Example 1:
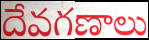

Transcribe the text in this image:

దేవగణాలు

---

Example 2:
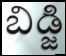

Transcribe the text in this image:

బిడ్జి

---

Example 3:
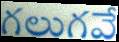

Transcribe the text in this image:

గలుగవే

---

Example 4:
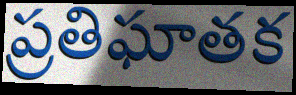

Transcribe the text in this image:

ప్రతిఘాతక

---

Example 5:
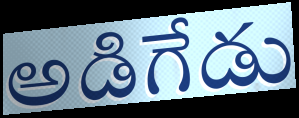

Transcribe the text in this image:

అడిగేడు